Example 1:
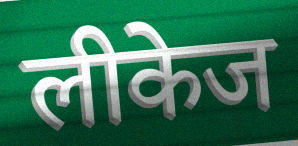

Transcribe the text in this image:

लीकेज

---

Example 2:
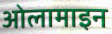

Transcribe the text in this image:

ओलामाइन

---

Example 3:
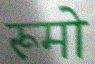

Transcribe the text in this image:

रूमो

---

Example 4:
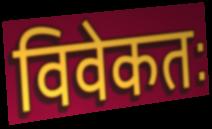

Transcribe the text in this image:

विवेकतः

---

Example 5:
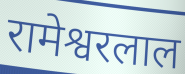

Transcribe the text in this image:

रामेश्वरलाल